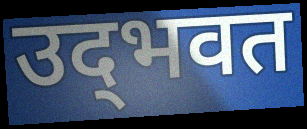
उद्‌भवत